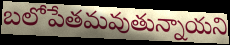
బలోపేతమవుతున్నాయని